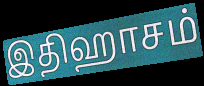
இதிஹாசம்